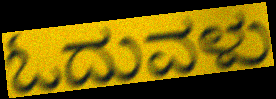
ಓದುವಳು